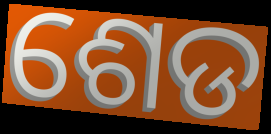
ଶେଡ